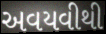
અવયવીથી